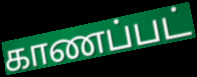
காணப்பட்